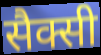
सैक्सी